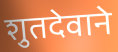
श्रुतदेवाने